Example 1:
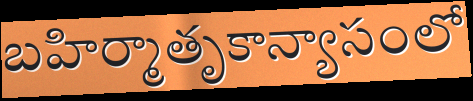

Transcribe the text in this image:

బహిర్మాతృకాన్యాసంలో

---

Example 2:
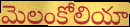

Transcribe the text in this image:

మెలంకోలియా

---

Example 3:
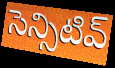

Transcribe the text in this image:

సెన్సిటివ్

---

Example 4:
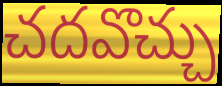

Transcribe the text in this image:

చదవొచ్చు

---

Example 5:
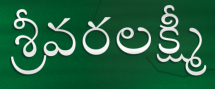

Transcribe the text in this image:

శ్రీవరలక్ష్మీ